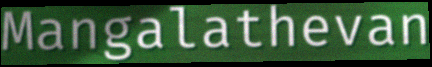
Mangalathevan